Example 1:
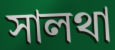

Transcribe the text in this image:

সালথা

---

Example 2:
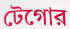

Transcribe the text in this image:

টেগোর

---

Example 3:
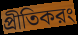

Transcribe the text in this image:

প্রীতিকরং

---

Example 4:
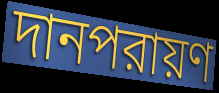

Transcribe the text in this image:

দানপরায়ণ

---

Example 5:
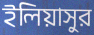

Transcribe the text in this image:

ইলিয়াসুর